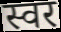
स्वर